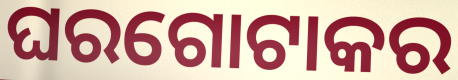
ଘରଗୋଟାକର